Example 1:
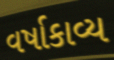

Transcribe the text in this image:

વર્ષાકાવ્ય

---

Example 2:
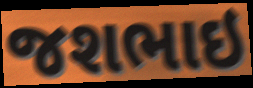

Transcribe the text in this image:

જશભાઇ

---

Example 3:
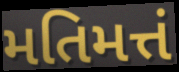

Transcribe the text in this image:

મતિમત્તં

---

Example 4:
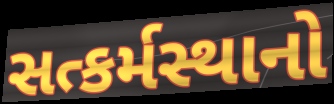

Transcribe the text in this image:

સત્કર્મસ્થાનો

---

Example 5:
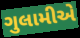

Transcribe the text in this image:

ગુલામીએ